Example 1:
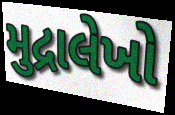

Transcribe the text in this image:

મુદ્રાલેખો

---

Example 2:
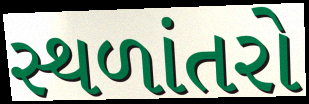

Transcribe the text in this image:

સ્થળાંતરો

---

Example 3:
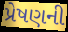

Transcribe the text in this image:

પ્રેષણની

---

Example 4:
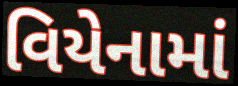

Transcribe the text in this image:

વિયેનામાં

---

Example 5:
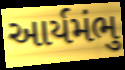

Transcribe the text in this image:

આર્યમંભુ